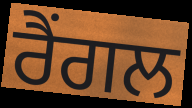
ਰੈਂਗਲ